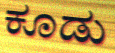
ಕೂಡು